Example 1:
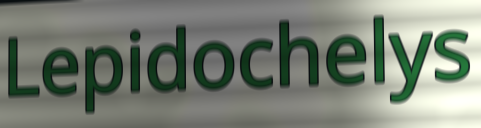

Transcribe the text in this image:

Lepidochelys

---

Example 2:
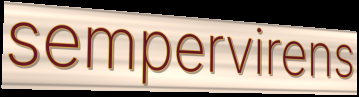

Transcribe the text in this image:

sempervirens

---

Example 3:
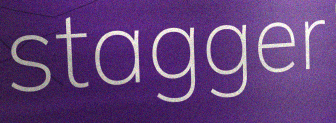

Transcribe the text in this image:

stagger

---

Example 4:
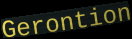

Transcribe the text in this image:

Gerontion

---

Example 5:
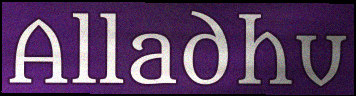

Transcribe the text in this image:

Alladhu